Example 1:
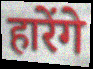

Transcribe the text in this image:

हारेंगे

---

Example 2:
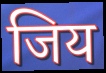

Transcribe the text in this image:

जिय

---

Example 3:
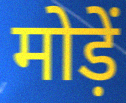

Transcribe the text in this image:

मोड़ें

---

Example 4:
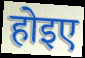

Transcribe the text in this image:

होइए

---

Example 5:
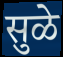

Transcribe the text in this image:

सुळे